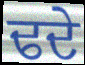
ਢਦੇ